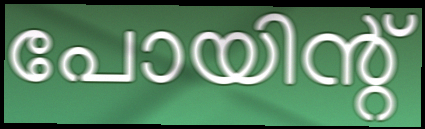
പോയിന്റ്